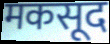
मकसूद